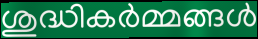
ശുദ്ധികർമ്മങ്ങൾ